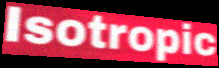
Isotropic